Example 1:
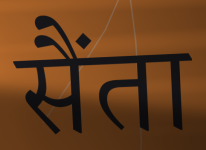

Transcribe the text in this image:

सैंता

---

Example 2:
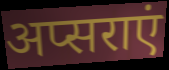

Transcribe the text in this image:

अप्सराएं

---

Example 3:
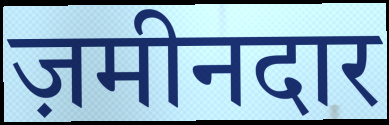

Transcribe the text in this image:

ज़मीनदार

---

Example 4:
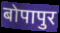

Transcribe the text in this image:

बोपापुर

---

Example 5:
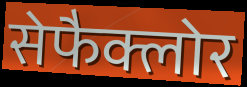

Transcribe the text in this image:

सेफैक्लोर